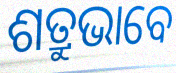
ଶତ୍ରୁଭାବେ